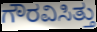
ಗೌರವಿಸಿತ್ತು